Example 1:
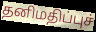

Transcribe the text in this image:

தனிமதிப்புச்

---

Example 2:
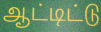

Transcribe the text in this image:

ஆட்டிட்டு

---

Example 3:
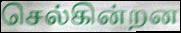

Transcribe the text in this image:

செல்கின்றன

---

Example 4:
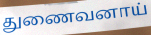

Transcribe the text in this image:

துணைவனாய்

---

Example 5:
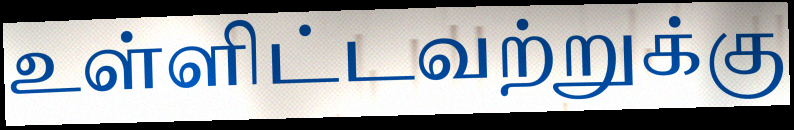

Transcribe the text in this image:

உள்ளிட்டவற்றுக்கு